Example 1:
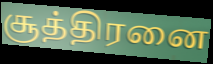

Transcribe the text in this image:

சூத்திரனை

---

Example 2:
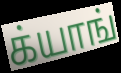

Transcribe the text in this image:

க்யாங்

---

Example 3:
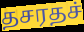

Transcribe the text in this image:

தசரதச்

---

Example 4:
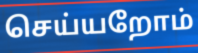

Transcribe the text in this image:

செய்யறோம்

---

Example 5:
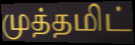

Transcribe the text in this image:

முத்தமிட்